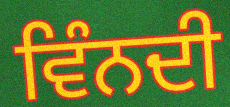
ਵਿੰਨਦੀ